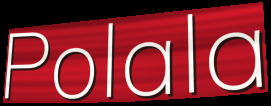
Polala